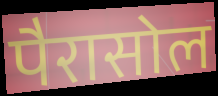
पैरासोल